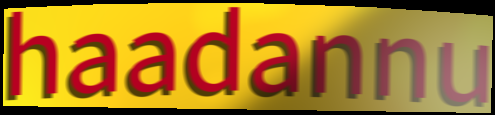
haadannu